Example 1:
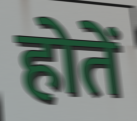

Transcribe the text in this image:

होतें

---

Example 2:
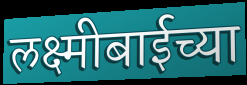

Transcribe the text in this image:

लक्ष्मीबाईच्या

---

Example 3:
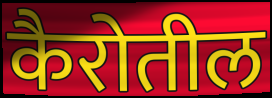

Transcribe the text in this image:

कैरोतील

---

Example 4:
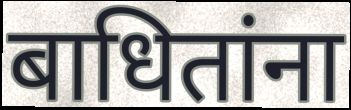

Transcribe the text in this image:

बाधितांना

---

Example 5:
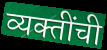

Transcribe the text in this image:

व्यक्‍तींची